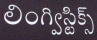
లింగ్విస్టిక్స్